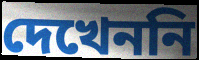
দেখেননি